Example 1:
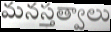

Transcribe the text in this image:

మనస్తత్వాలు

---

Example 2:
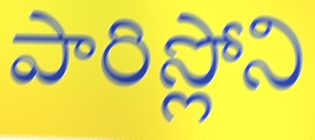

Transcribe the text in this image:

పారిస్లోని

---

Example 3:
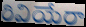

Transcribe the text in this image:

రివియేరా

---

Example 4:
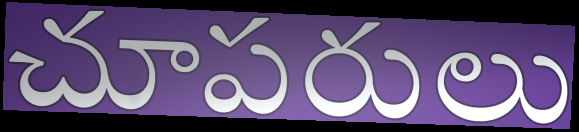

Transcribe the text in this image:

చూపరులు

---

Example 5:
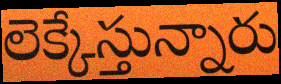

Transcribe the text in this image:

లెక్కేస్తున్నారు